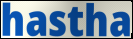
hastha